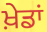
ਖ਼ੇਡਾਂ